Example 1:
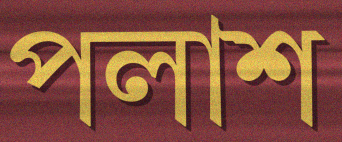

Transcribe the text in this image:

পলাশ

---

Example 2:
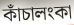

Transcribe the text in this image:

কাঁচালংকা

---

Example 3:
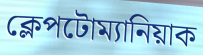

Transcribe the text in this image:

ক্লেপটোম্যানিয়াক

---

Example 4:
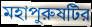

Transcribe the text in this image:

মহাপুরুষটির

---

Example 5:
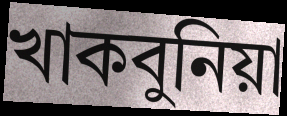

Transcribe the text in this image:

খাকবুনিয়া